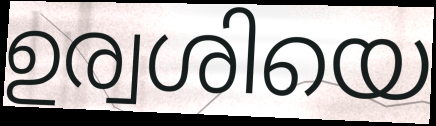
ഉര്വശിയെ